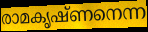
രാമകൃഷ്ണനെന്ന